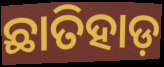
ଛାତିହାଡ଼